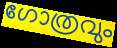
ഗോത്രവും